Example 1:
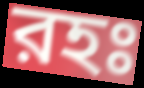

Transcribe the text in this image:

রহঃ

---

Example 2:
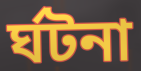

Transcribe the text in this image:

র্ঘটনা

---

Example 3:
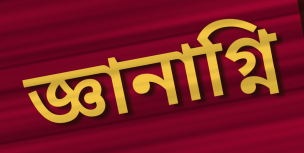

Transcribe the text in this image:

জ্ঞানাগ্নি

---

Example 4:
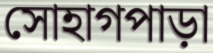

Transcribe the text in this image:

সোহাগপাড়া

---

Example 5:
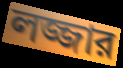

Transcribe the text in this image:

লজ্জার